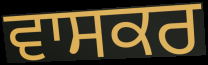
ਵਾਸਕਰ